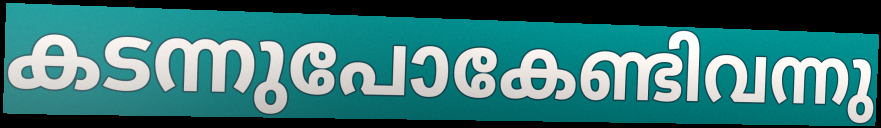
കടന്നുപോകേണ്ടിവന്നു